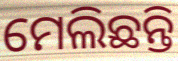
ମେଲିଛନ୍ତି